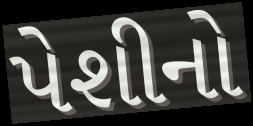
પેશીનો